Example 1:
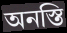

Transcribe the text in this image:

অনস্তি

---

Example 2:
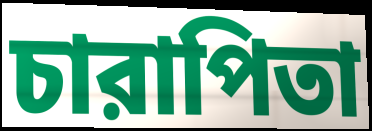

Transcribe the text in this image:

চারাপিতা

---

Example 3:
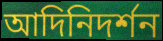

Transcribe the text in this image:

আদিনিদর্শন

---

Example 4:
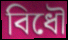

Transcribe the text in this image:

বিধৌ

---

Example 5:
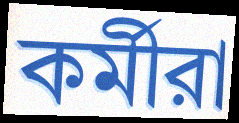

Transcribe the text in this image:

কর্মীরা